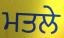
ਮਤਲੇ